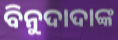
ବିନୁଦାଦାଙ୍କ